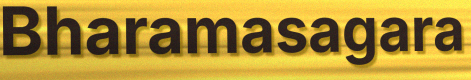
Bharamasagara